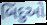
બિંદુઓ